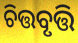
ଚିତ୍ତବୃତ୍ତି